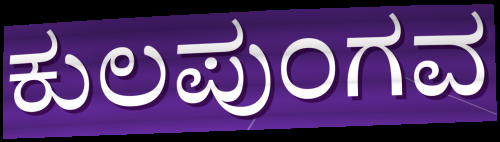
ಕುಲಪುಂಗವ